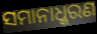
ସମାନାଧ୍କରଣ